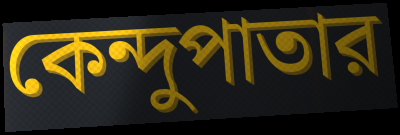
কেন্দুপাতার